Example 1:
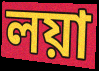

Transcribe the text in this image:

লয়া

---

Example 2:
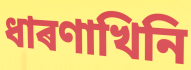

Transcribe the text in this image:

ধাৰণাখিনি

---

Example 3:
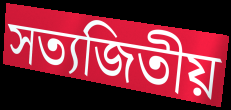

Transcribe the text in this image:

সত্যজিতীয়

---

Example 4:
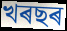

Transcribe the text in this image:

খৰছৰ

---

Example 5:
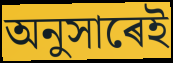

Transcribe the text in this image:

অনুসাৰেই